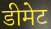
डीमेट